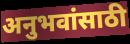
अनुभवांसाठी